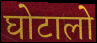
घोटालो